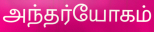
அந்தர்யோகம்